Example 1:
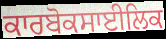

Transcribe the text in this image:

ਕਾਰਬੋਕਸਾਈਲਿਕ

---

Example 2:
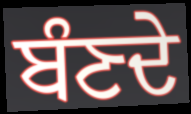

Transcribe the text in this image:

ਬੰਣਦੇ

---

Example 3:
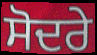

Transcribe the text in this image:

ਸੋਦਰੇ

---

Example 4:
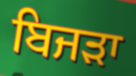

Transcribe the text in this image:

ਬਿਜੜਾ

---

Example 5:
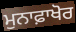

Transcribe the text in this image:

ਮੁਨਾਫ਼ਾਖੋਰ